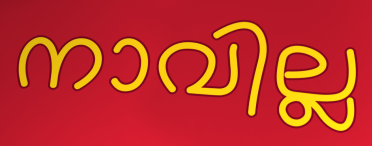
നാവില്ല